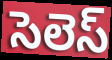
సెలెస్